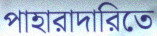
পাহারাদারিতে